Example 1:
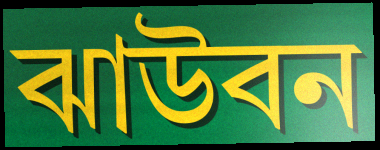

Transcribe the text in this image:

ঝাউবন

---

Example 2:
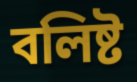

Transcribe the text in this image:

বলিষ্ট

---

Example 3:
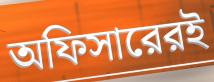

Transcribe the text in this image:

অফিসারেরই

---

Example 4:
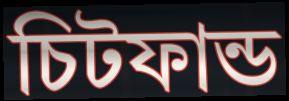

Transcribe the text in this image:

চিটফান্ড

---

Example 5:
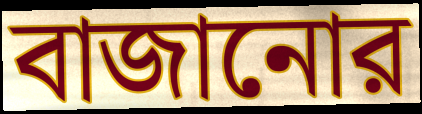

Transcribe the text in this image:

বাজানোর